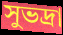
সুভদ্রা